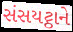
સંસયટ્ઠાને